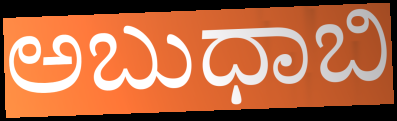
ಅಬುಧಾಬಿ